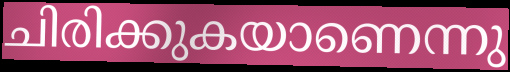
ചിരിക്കുകയാണെന്നു